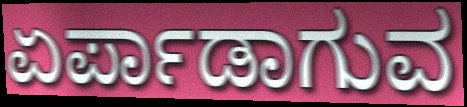
ಏರ್ಪಾಡಾಗುವ